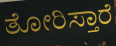
ತೋರಿಸ್ತಾರೆ